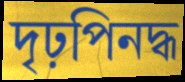
দৃঢ়পিনদ্ধ